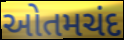
ઓતમચંદ